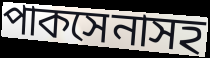
পাকসেনাসহ